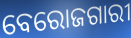
ବେରୋଜଗାରୀ